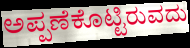
ಅಪ್ಪಣೆಕೊಟ್ಟಿರುವದು